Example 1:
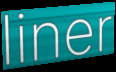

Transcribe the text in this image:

liner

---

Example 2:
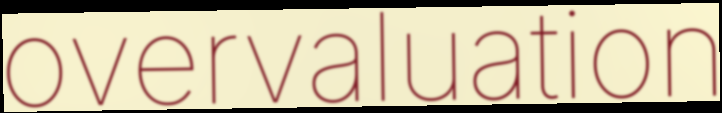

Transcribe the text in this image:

overvaluation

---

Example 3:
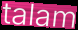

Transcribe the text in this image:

talam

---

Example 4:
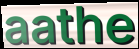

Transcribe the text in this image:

aathe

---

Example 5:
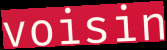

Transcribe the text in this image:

voisin